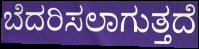
ಬೆದರಿಸಲಾಗುತ್ತದೆ